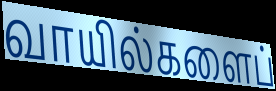
வாயில்களைப்